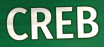
CREB